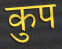
कुप